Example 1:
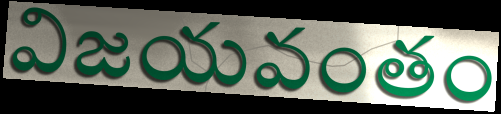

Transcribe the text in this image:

విజయవంతం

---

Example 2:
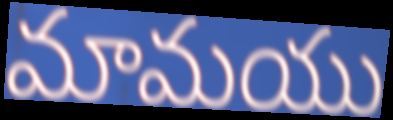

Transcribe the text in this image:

మామయు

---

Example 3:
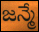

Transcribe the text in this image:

జన్మే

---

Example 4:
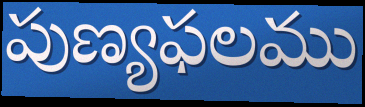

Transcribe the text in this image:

పుణ్యఫలము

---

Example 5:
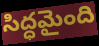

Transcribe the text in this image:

సిద్ధమైంది